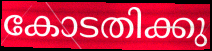
കോടതിക്കു